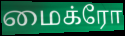
மைக்ரோ